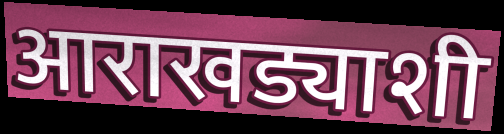
आराखड्याशी